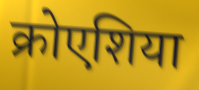
क्रोएशिया